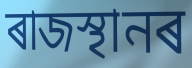
ৰাজস্থানৰ